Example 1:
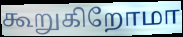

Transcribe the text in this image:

கூறுகிறோமா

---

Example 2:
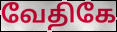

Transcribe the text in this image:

வேதிகே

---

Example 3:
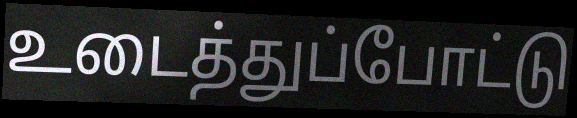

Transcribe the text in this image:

உடைத்துப்போட்டு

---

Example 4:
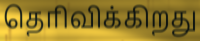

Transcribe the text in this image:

தெரிவிக்கிறது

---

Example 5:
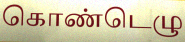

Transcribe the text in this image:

கொண்டெழு